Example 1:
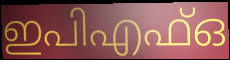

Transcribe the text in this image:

ഇപിഎഫ്ഒ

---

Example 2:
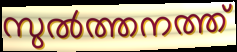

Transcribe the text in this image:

സുൽത്തനത്ത്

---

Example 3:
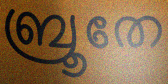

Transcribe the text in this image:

ബ്രൂതേ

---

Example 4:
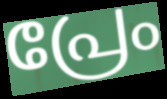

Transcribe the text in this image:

പ്രേം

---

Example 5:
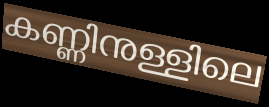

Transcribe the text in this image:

കണ്ണിനുള്ളിലെ